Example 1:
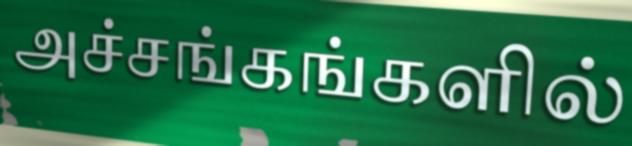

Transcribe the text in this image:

அச்சங்கங்களில்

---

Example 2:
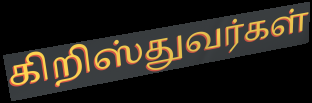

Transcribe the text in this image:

கிறிஸ்துவர்கள்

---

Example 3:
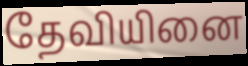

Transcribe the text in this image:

தேவியினை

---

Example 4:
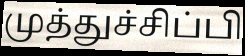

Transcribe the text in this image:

முத்துச்சிப்பி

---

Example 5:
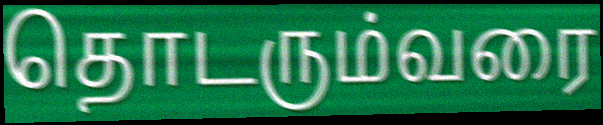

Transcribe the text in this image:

தொடரும்வரை